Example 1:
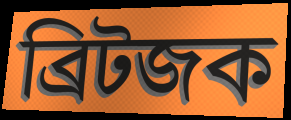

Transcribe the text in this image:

ব্রিটজক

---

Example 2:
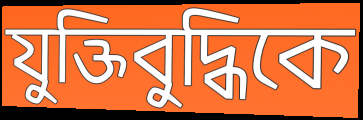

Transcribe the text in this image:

যুক্তিবুদ্ধিকে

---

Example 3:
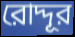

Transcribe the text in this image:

রোদ্দূর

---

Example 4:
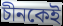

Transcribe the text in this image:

চীনকেই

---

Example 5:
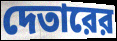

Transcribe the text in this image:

দেতারের